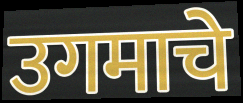
उगमाचे